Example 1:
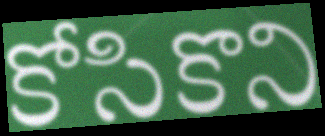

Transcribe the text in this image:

కోసికొని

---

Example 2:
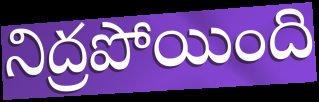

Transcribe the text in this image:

నిద్రపోయింది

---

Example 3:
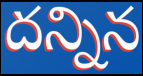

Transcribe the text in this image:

దన్నిన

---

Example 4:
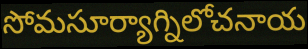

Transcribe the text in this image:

సోమసూర్యాగ్నిలోచనాయ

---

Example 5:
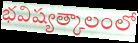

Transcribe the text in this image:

భవిష్యత్కాలంలో